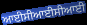
ਆਈਸੀਆਈਸੀਆਈ